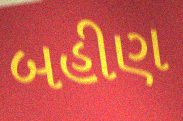
બહીણ